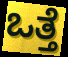
ಒತ್ತೆ